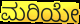
ಮರಿಯೇ